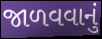
જાળવવાનું